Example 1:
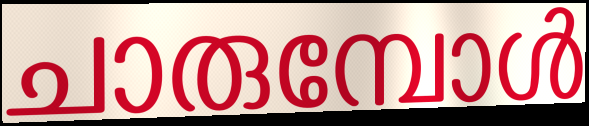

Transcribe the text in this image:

ചാരുമ്പോൾ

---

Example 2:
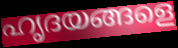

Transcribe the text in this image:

ഹൃദയങ്ങളെ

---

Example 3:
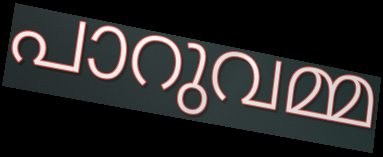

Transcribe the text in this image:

പാറുവമ്മ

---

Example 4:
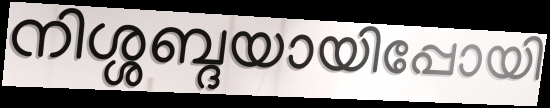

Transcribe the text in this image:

നിശ്ശബ്ദയായിപ്പോയി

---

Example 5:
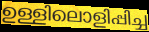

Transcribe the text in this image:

ഉള്ളിലൊളിപ്പിച്ച